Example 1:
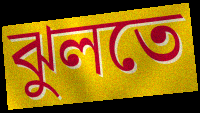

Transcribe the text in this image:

ঝুলতে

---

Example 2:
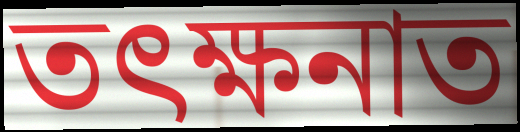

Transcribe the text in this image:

তৎক্ষনাত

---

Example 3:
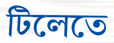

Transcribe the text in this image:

টিলেতে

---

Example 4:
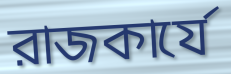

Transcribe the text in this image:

রাজকার্যে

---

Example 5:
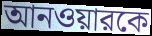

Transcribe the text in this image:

আনওয়ারকে